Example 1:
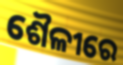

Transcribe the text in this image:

ଶୈଳୀରେ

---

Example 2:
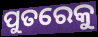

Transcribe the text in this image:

ପୁତରେକୁ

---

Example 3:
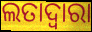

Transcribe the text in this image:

ଲତାଦ୍ୱାରା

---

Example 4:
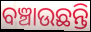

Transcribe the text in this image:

ବଞ୍ଚାଉଛନ୍ତି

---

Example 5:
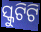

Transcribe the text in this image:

ସ୍କୁଟିଟି